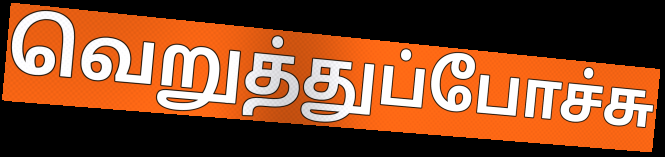
வெறுத்துப்போச்சு